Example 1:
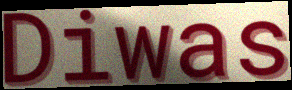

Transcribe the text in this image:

Diwas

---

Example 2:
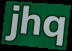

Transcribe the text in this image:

jhq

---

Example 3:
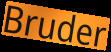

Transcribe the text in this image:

Bruder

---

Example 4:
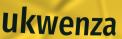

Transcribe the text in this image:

ukwenza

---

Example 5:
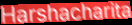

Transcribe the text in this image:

Harshacharita